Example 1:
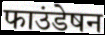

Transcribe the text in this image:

फाउंडेषन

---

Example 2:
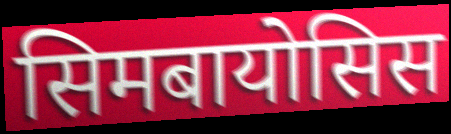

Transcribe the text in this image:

सिमबायोसिस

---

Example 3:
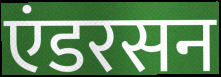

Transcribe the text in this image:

एंडरसन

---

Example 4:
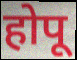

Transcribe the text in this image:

होपू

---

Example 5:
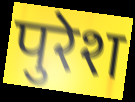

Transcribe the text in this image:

पुरेश